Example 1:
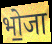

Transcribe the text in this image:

भो॒जा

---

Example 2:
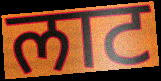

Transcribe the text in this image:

लाट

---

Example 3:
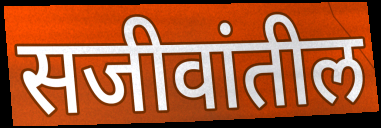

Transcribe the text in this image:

सजीवांतील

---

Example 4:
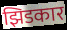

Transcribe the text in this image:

झिडकार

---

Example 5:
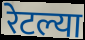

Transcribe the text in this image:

रेटल्या